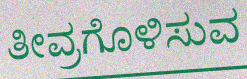
ತೀವ್ರಗೊಳಿಸುವ